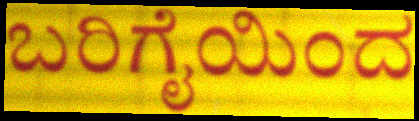
ಬರಿಗೈಯಿಂದ